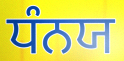
ਧੰਨਯ